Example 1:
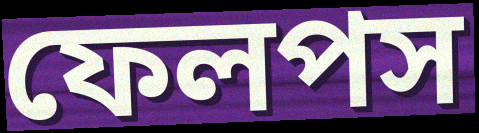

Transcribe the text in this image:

ফেলপস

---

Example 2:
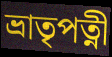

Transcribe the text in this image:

ভ্রাতৃপত্নী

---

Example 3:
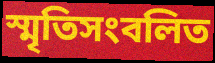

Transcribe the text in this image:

স্মৃতিসংবলিত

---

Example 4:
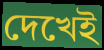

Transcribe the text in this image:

দেখেই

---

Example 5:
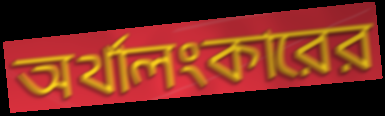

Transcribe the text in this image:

অর্থালংকারের